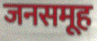
जनसमूह